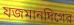
যজমানদিগের